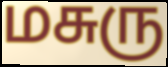
மசுரு